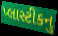
પ્લાસ્ટીકનુ